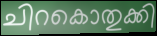
ചിറകൊതുക്കി